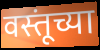
वस्तूंच्या